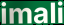
imali